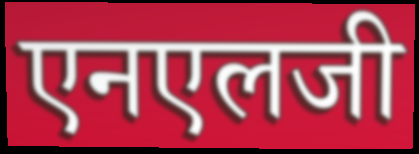
एनएलजी